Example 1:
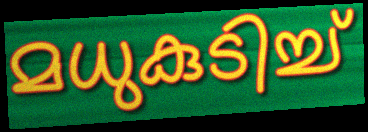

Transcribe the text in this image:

മധുകുടിച്ച്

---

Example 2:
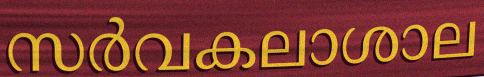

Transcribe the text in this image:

സർവകലാശാല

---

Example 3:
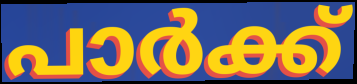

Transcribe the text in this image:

പാർക്ക്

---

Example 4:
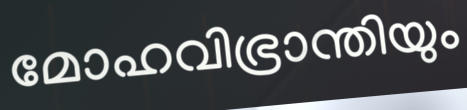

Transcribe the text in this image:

മോഹവിഭ്രാന്തിയും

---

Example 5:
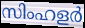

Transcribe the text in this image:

സിംഹളർ